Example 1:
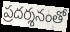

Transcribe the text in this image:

ప్రదర్శనంతో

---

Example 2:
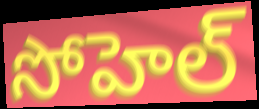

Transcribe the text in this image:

సోహెల్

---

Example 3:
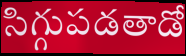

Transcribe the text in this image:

సిగ్గుపడతాడో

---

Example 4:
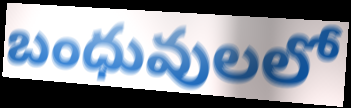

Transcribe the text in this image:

బంధువులలో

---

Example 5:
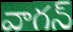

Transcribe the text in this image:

వాగన్